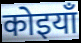
कोइयाँ